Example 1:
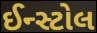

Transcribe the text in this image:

ઈન્સ્ટોલ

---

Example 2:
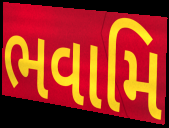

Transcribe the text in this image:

ભવામિ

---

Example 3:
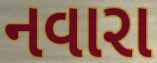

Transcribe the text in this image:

નવારા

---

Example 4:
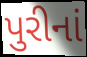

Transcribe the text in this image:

પુરીનાં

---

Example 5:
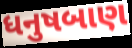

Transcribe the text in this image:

ધનુષબાણ